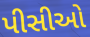
પીસીઓ